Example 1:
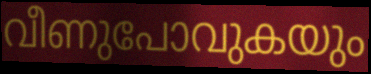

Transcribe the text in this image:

വീണുപോവുകയും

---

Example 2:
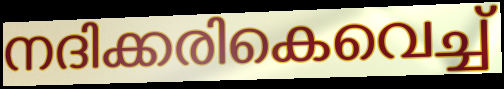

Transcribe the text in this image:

നദിക്കരികെവെച്ച്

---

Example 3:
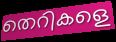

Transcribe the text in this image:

തെറികളെ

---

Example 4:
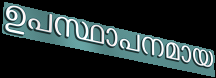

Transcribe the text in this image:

ഉപസ്ഥാപനമായ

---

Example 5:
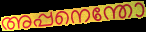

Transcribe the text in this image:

അപ്പനെന്തോ